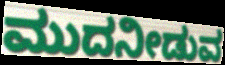
ಮುದನೀಡುವ